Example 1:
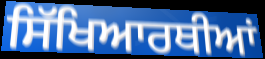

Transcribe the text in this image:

ਸਿੱਖਿਆਰਥੀਆਂ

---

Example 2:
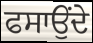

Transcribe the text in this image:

ਫਸਾਉਂਦੇ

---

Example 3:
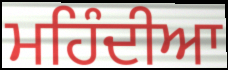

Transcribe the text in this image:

ਮਹਿੰਦੀਆ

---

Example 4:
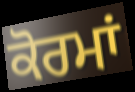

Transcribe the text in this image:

ਕੋਰਮਾਂ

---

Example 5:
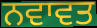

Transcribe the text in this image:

ਨਵਾਵਤ